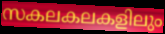
സകലകലകളിലും